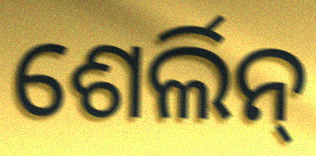
ଶେର୍ଲିନ୍